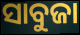
ସାବୁଜା